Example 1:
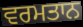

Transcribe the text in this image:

ਵਰਮਤਾਨ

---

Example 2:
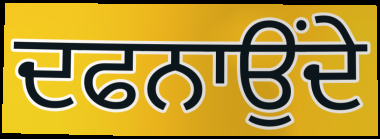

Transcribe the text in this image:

ਦਫਨਾਉਂਦੇ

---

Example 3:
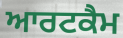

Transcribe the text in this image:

ਆਰਟਕੈਮ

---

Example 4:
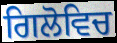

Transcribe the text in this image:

ਗਿਲੋਵਿਚ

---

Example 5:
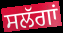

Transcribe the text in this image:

ਸਲੱਗਾਂ